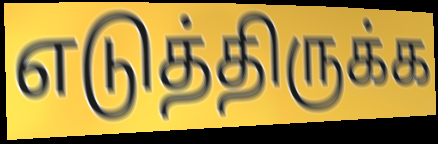
எடுத்திருக்க